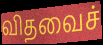
விதவைச்